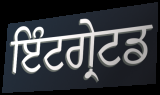
ਇੰਟਗ੍ਰੇਟਡ